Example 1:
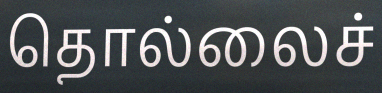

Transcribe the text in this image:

தொல்லைச்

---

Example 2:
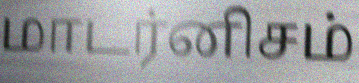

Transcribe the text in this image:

மாடர்னிசம்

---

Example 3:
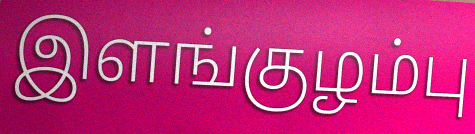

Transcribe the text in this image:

இளங்குழம்பு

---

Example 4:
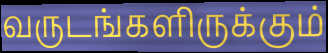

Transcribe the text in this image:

வருடங்களிருக்கும்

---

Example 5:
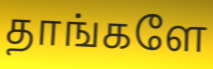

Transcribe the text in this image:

தாங்களே